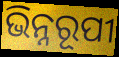
ଭିନ୍ନରୂପୀ